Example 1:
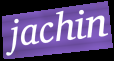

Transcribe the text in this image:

jachin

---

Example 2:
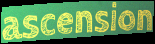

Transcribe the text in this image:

ascension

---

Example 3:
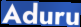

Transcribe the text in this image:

Aduru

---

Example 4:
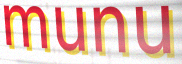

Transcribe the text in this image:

munu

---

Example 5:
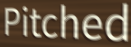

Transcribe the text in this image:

Pitched